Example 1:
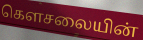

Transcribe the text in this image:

கௌசலையின்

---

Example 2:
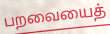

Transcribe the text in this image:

பறவையைத்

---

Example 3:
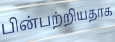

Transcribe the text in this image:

பின்பற்றியதாக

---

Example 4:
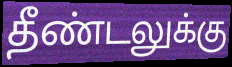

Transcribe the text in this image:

தீண்டலுக்கு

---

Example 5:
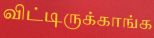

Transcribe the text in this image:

விட்டிருக்காங்க